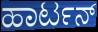
ಹಾರ್ಟನ್